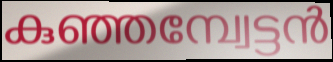
കുഞ്ഞമ്പ്വേട്ടൻ